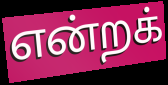
என்றக்